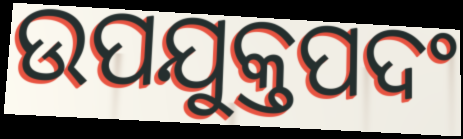
ଉପଯୁକ୍ତପଦଂ